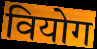
वियोग